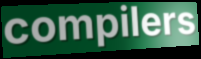
compilers